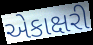
એકાક્ષરી